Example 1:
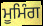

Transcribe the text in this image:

ਮੂਮਿੰਗ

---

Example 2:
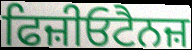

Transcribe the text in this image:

ਫਿਜ਼ੀਓਟੈਨਜ਼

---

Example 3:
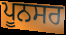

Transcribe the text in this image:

ਪੂਨਸਰ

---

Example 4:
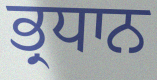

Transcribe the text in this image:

ਭ੍ਰਧਾਨ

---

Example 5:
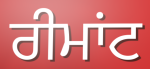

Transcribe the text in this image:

ਰੀਮਾਂਟ